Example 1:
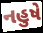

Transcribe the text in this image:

નહુષે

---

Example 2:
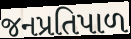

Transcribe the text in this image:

જનપ્રતિપાળ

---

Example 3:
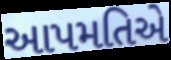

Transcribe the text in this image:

આપમતિએ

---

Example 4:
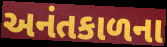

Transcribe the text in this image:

અનંતકાળના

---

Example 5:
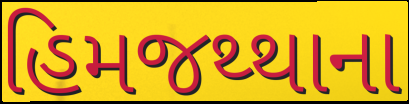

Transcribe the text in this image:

હિમજથ્થાના